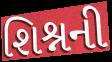
શિશ્નની